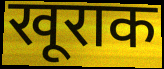
खूराक